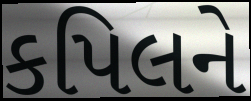
કપિલને